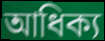
আধিক্য